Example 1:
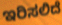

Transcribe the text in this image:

ಇರಿಸಲಿದೆ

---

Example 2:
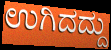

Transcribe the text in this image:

ಉಗಿದದ್ದು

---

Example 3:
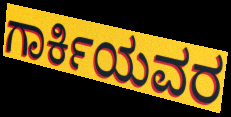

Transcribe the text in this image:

ಗಾರ್ಕಿಯವರ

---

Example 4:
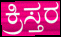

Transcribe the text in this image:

ಕ್ರಿಸ್ತರ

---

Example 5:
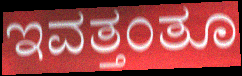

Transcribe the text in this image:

ಇವತ್ತಂತೂ